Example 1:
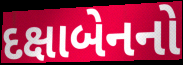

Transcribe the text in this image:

દક્ષાબેનનો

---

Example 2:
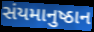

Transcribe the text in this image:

સંયમાનુષ્ઠાન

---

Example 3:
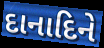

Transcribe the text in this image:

દાનાદિને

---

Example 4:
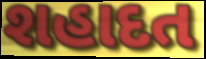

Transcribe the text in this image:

શહાદત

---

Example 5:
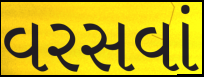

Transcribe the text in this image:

વરસવાં